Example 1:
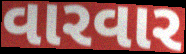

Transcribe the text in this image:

વારવાર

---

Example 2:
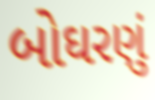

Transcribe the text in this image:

બોઘરણું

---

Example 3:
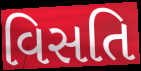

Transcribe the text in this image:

વિસતિ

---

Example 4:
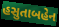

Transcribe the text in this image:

હસુતાબહેન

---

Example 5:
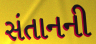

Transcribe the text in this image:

સંતાનની